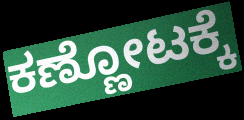
ಕಣ್ಣೋಟಕ್ಕೆ